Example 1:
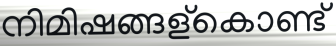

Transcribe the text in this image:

നിമിഷങ്ങള്കൊണ്ട്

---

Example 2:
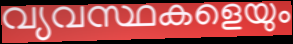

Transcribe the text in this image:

വ്യവസ്ഥകളെയും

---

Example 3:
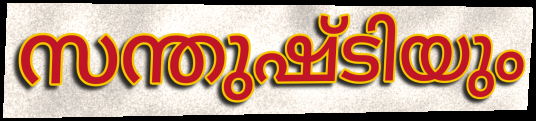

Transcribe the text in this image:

സന്തുഷ്ടിയും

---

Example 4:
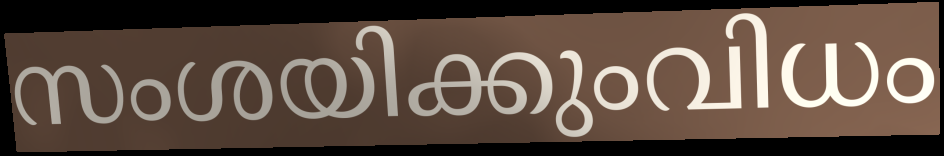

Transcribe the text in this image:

സംശയിക്കുംവിധം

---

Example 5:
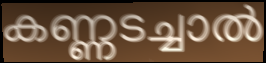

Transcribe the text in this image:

കണ്ണടച്ചാൽ